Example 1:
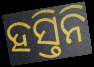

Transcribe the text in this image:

ହସ୍ତିନି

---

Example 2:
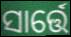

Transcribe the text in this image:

ସାର୍ତ୍ତେ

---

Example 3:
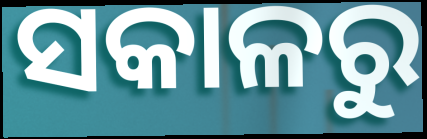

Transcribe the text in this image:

ସକାଳରୁ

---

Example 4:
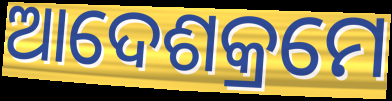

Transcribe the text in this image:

ଆଦେଶକ୍ରମେ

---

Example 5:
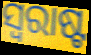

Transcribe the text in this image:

ସ୍ୱରାଷ୍ଟ